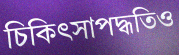
চিকিৎসাপদ্ধতিও